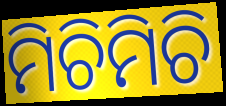
ମିଚିମିଚି